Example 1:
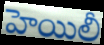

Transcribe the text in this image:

హెయిలీ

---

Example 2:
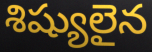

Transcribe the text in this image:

శిష్యులైన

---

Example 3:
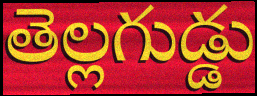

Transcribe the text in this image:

తెల్లగుడ్డు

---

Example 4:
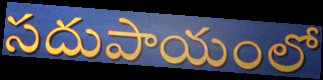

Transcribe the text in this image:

సదుపాయంలో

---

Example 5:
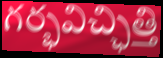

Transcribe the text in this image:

గర్భవిచ్ఛిత్తి